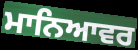
ਮਾਨਿਆਵਰ